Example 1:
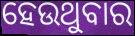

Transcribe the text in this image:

ହେଉଥୁବାର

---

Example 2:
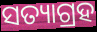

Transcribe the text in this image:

ସତ୍ୟାଗ୍ରହ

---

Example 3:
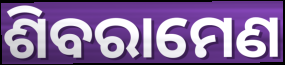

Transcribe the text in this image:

ଶିବରାମେଣ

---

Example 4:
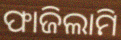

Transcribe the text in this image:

ଫାଜିଲାମି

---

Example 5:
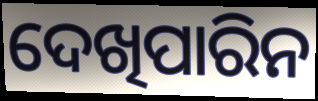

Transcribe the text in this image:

ଦେଖିପାରିନ